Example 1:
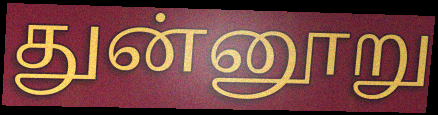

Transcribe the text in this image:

துன்னூறு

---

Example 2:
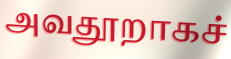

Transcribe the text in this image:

அவதூறாகச்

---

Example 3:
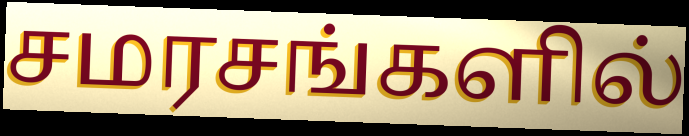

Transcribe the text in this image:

சமரசங்களில்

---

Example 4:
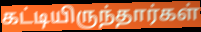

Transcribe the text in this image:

கட்டியிருந்தார்கள்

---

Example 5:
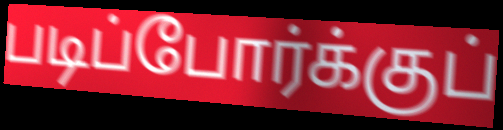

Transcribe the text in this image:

படிப்போர்க்குப்